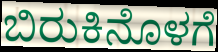
ಬಿರುಕಿನೊಳಗೆ